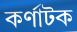
কৰ্ণাটক